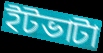
ইটভাটা